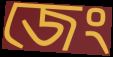
জেং